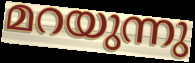
മറയുന്നു